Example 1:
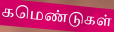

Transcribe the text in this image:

கமெண்டுகள்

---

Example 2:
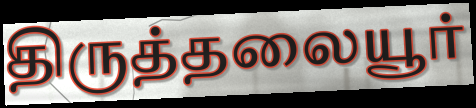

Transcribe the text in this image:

திருத்தலையூர்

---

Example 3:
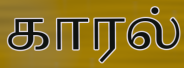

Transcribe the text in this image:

காரல்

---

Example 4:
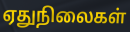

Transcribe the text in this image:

ஏதுநிலைகள்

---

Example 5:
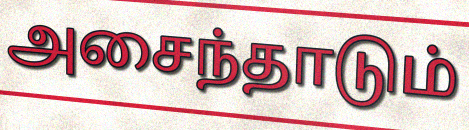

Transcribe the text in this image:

அசைந்தாடும்